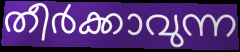
തീർക്കാവുന്ന